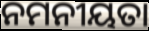
ନମନୀୟତା